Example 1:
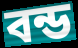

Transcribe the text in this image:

বন্ড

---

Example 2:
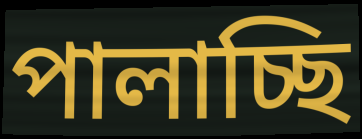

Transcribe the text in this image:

পালাচ্ছি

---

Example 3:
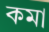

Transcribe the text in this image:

কমা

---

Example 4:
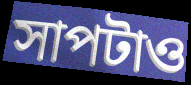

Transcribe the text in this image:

সাপটাও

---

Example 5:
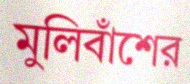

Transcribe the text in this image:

মুলিবাঁশের